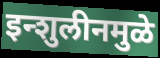
इन्शुलीनमुळे